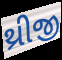
થ્રીજી